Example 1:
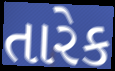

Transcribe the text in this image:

તારેક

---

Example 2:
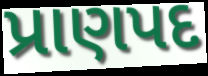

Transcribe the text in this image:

પ્રાણપદ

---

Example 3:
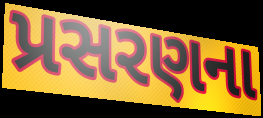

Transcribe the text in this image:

પ્રસરણના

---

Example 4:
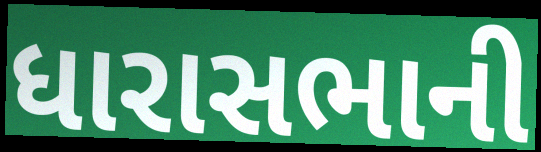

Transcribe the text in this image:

ધારાસભાની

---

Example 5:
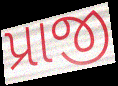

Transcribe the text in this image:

પ્રાજી